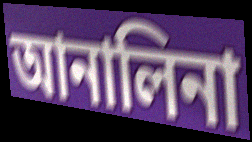
আনালিনা